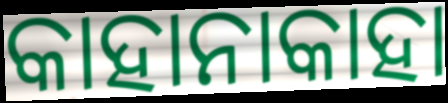
କାହାନାକାହା